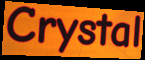
Crystal